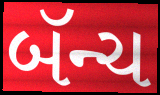
બૅન્ચ